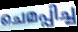
ചെമപ്പിച്ച